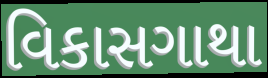
વિકાસગાથા